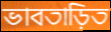
ভাবতাড়িত